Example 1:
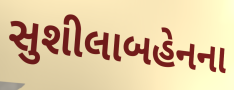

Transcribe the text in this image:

સુશીલાબહેનના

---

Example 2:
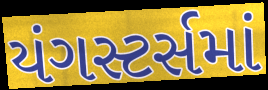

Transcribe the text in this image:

યંગસ્ટર્સમાં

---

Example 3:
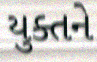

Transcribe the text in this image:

યુક્તને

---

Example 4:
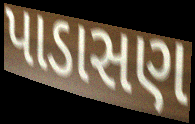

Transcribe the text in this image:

પાડાસણ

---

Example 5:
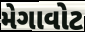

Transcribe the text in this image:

મેગાવોટ